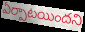
ఏర్పాటయిందని